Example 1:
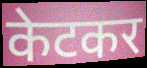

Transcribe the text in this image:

केटकर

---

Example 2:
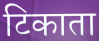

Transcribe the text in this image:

टिकाता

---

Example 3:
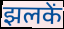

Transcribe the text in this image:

झलकें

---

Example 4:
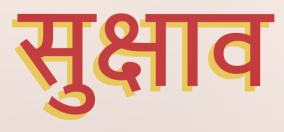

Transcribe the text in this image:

सुक्षाव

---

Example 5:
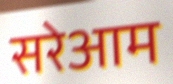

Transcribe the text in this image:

सरेआम